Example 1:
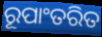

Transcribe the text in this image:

ରୂପାଂତରିତ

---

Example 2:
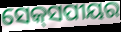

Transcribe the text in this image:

ସେକ୍‌ସପୀୟର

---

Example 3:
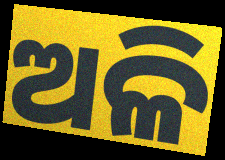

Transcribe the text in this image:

ଅଳି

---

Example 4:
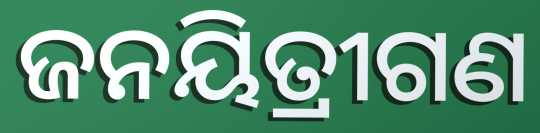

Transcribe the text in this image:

ଜନୟିତ୍ରୀଗଣ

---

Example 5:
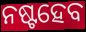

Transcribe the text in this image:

ନଷ୍ଟହେବ